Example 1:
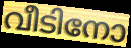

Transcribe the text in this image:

വീടിനോ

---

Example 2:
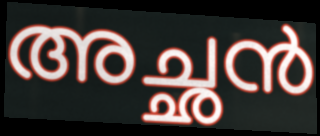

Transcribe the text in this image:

അച്ഛൻ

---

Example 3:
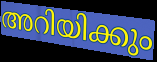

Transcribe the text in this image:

അറിയിക്കും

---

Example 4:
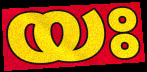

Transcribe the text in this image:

യഃ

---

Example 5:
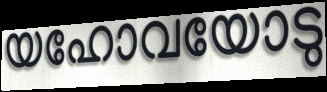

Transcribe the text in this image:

യഹോവയോടു